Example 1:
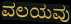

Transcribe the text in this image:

ವಲಯವು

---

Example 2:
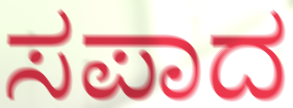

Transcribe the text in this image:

ಸಪಾದ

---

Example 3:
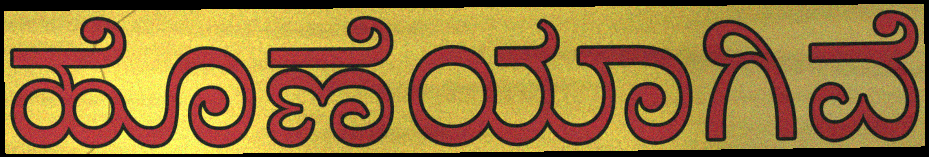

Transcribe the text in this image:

ಹೊಣೆಯಾಗಿವೆ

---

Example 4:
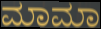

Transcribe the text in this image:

ಮಾಮಾ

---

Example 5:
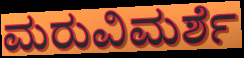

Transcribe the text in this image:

ಮರುವಿಮರ್ಶೆ